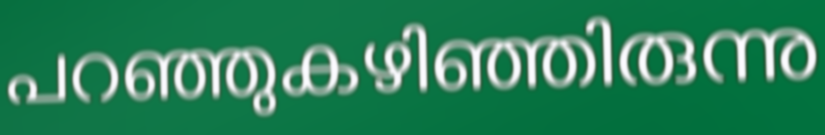
പറഞ്ഞുകഴിഞ്ഞിരുന്നു